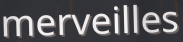
merveilles